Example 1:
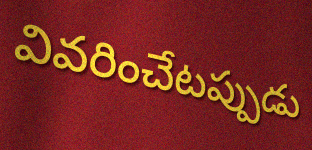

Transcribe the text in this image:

వివరించేటప్పుడు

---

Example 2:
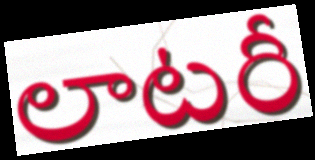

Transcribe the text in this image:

లాటరీ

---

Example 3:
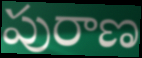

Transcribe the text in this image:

పురాణ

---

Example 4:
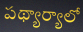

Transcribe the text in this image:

పథ్యార్యాలో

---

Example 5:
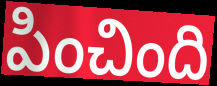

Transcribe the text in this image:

పించింది